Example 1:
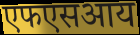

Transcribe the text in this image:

एफएसआय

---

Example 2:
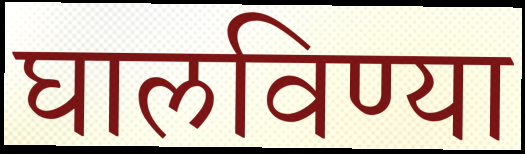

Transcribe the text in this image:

घालविण्या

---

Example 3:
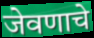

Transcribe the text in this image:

जेवणाचे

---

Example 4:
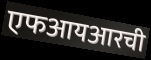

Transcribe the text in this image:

एफआयआरची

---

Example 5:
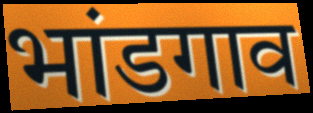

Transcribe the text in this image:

भांडगाव